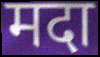
मदा